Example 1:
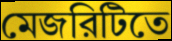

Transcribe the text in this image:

মেজরিটিতে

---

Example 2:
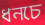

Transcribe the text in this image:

ধনচে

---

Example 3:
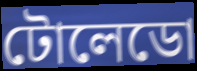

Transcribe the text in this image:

টোলেডো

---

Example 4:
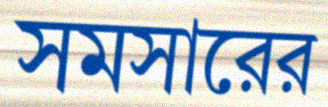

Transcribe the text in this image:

সমসারের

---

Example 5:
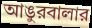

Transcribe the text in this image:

আঙুরবালার